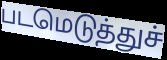
படமெடுத்துச்